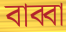
বাব্বা